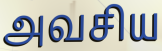
அவசிய